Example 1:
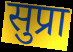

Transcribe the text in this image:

सुप्रा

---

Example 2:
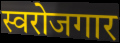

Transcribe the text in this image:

स्वरोजगार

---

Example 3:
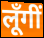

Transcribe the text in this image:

लूँगीं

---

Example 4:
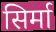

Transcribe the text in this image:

सिर्मा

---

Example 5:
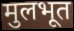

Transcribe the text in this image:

मुलभूत